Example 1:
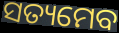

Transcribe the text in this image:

ସତ୍ୟମେବ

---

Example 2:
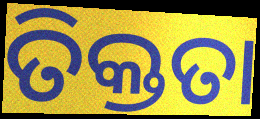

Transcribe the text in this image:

ତିକ୍ତତା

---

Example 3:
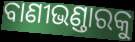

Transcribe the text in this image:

ବାଣୀଭଣ୍ଡାରକୁ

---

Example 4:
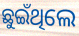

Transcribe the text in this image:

ଛୁଇଁଥିଲେ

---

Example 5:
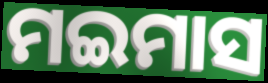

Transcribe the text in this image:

ମଇମାସ